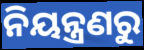
ନିୟନ୍ତ୍ରଣରୁ